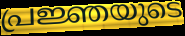
പ്രജ്ഞയുടെ